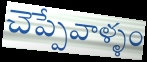
చెప్పేవాళ్ళం